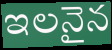
ఇలనైన